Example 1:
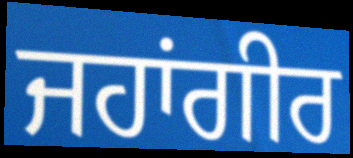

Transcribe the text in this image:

ਜਹਾਂਗੀਰ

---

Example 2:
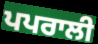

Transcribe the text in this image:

ਪਪਰਾਲੀ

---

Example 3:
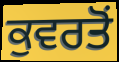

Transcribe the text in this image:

ਕੁਵਰਤੋਂ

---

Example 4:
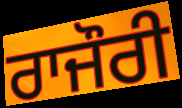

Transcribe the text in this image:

ਰਾਜੌਰੀ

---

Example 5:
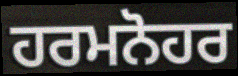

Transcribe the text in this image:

ਹਰਮਨੋਹਰ